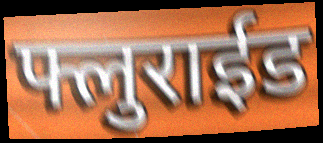
फ्लुराईड